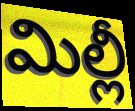
మిల్లీ